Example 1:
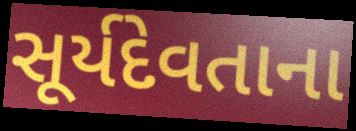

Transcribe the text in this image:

સૂર્યદેવતાના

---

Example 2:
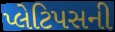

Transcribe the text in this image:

પ્લેટિપસની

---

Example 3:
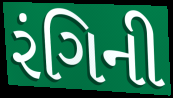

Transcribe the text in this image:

રંગિની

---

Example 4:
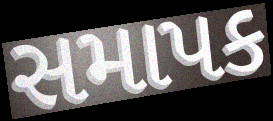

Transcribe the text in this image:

સમાપક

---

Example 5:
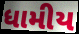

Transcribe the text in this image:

ધામીય